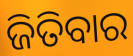
ଜିତିବାର